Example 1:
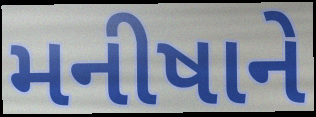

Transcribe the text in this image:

મનીષાને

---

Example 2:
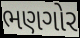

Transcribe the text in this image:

ભણગોર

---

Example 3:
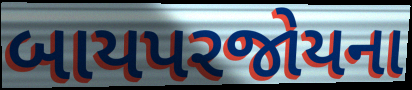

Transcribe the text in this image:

બાયપરજોયના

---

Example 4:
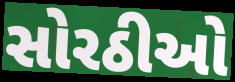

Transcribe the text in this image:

સોરઠીઓ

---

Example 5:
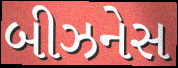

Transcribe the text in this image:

બીઝનેસ